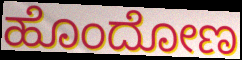
ಹೊಂದೋಣ